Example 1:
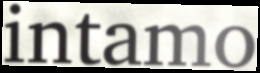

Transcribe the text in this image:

intamo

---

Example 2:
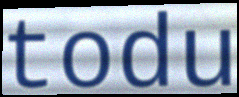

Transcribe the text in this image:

todu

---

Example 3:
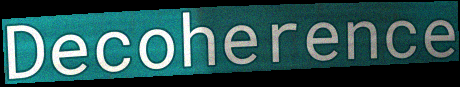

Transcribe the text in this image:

Decoherence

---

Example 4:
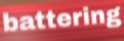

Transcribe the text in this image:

battering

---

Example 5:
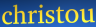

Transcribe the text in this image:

christou